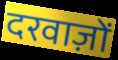
दरवाज़ों